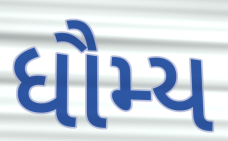
ધૌમ્ય